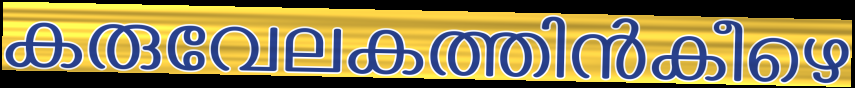
കരുവേലകത്തിൻകീഴെ